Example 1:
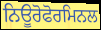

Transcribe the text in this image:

ਨਿਊਰੋਫੋਰਮਿਨਲ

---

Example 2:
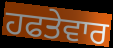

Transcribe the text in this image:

ਹਫਤੇਵਾਰ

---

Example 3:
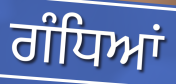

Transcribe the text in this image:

ਗੰਧਿਆਂ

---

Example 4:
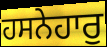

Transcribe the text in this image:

ਹਸਨੇਹਾਰੁ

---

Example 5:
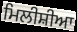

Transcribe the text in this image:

ਮਿਲੀਸ਼ੀਆ